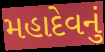
મહાદેવનું